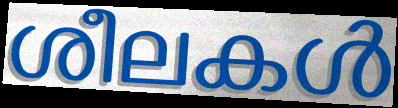
ശീലകൾ